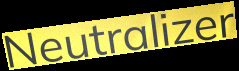
Neutralizer